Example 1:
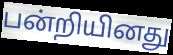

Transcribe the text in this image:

பன்றியினது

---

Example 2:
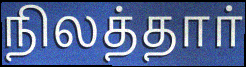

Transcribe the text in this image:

நிலத்தார்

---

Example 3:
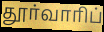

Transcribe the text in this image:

தூர்வாரிப்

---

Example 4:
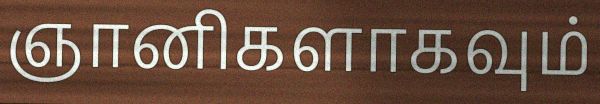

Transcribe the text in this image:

ஞானிகளாகவும்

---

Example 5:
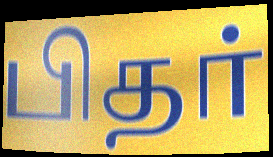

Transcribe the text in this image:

பிதர்